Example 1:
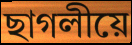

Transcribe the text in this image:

ছাগলীয়ে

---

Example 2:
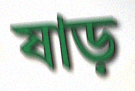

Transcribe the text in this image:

ষাড়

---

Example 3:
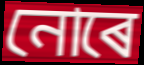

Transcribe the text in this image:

নোৰে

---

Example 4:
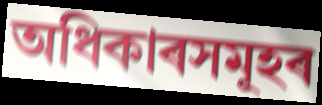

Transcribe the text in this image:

অধিকাৰসমূহৰ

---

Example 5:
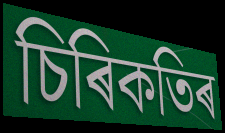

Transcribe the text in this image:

চিৰিকতিৰ